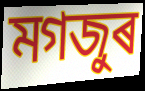
মগজুৰ